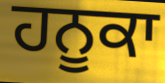
ਹਨੂਕਾ